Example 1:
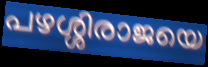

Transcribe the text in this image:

പഴശ്ശിരാജയെ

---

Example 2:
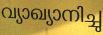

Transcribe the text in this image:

വ്യാഖ്യാനിച്ചു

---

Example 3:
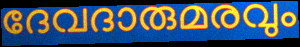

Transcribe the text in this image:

ദേവദാരുമരവും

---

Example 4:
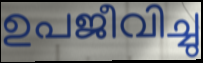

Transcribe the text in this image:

ഉപജീവിച്ചു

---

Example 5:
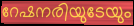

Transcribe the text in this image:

റേഷനരിയുടേയും